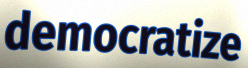
democratize